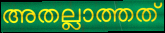
അതല്ലാത്തത്